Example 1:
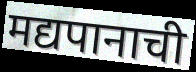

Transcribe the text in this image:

मद्यपानाची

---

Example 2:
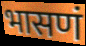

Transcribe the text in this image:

भासणं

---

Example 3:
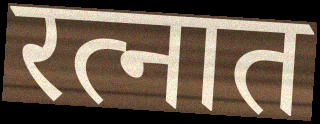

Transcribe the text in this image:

रत्नात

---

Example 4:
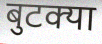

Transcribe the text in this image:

बुटक्या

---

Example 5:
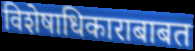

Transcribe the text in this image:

विशेषाधिकाराबाबत